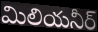
మిలియనీర్